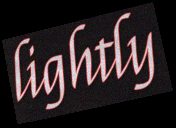
lightly